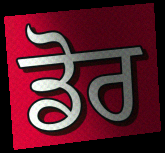
ਡੋਰ